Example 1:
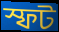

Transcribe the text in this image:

স্ফট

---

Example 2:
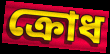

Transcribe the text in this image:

ক্রোধ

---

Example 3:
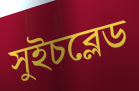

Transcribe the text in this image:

সুইচব্লেড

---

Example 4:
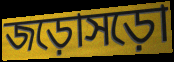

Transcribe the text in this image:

জড়োসড়ো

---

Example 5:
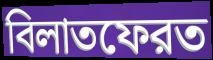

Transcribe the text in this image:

বিলাতফেরত